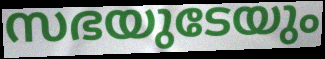
സഭയുടേയും